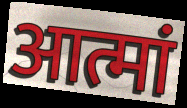
आत्मां